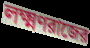
লক্ষ্মণরাজের